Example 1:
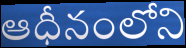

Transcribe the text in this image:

ఆధీనంలోని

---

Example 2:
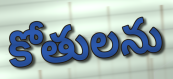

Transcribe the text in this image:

కోతులను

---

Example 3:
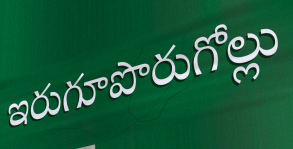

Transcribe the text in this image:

ఇరుగూపొరుగోల్లు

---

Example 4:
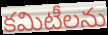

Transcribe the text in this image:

కమిటీలను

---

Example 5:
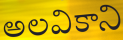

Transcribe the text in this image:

అలవికాని